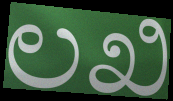
ಲಖಿ